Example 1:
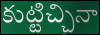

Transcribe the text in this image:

కుట్టిచ్చినా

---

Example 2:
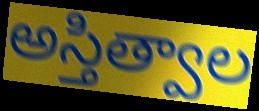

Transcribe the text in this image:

అస్తిత్వాల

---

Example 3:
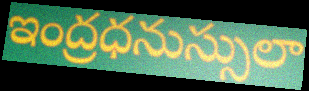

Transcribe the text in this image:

ఇంద్రధనుస్సులా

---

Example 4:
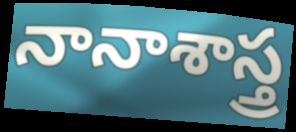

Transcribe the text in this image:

నానాశాస్త్ర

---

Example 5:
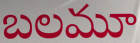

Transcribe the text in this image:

బలమూ